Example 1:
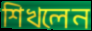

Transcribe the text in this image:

শিখলেন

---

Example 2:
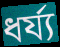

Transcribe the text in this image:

ধর্য্য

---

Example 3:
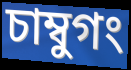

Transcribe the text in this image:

চাম্বুগং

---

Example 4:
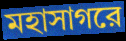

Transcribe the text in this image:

মহাসাগরে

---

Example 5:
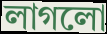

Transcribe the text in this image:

লাগলো